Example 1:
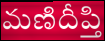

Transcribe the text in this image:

మణిదీప్తి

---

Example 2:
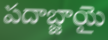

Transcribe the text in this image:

పదాబ్జాయై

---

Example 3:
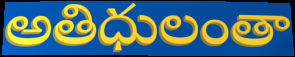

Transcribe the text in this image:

అతిధులంతా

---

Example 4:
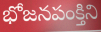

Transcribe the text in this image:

భోజనపంక్తిని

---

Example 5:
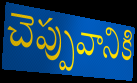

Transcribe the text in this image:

చెప్పువానికి